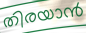
തിരയാൻ